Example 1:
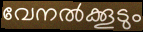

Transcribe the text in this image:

വേനൽക്കൂടും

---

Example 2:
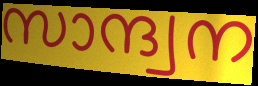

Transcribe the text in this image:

സാന്ദ്വന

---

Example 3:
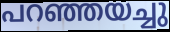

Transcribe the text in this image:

പറഞ്ഞയച്ചു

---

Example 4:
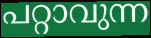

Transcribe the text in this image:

പറ്റാവുന്ന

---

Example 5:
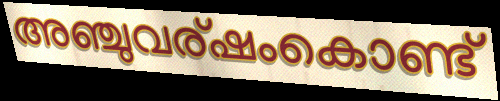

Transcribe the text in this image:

അഞ്ചുവര്ഷംകൊണ്ട്